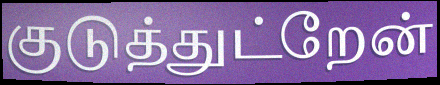
குடுத்துட்றேன்